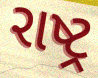
રાષ્ટ્ર